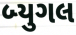
બ્યુગલ